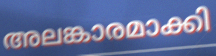
അലങ്കാരമാക്കി